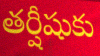
తర్షీషుకు